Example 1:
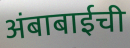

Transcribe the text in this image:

अंबाबाईची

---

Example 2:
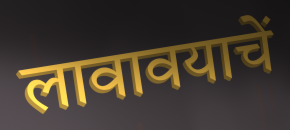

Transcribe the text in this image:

लावावयाचें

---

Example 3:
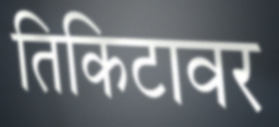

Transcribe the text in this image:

तिकिटावर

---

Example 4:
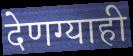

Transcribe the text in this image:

देणग्याही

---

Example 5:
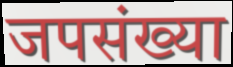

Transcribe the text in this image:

जपसंख्या